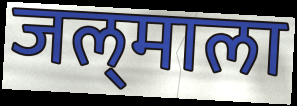
जल्माला